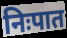
निःपात